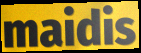
maidis